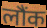
लौंक